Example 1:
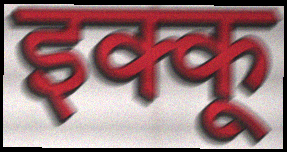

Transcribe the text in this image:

इक्कू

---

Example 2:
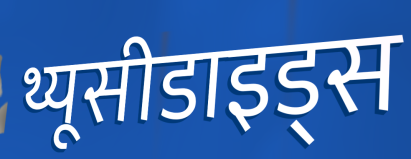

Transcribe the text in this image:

थ्यूसीडाइड्स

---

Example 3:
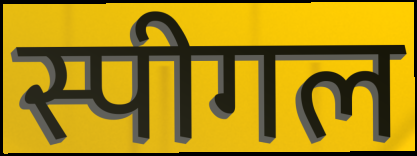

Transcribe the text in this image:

स्पीगल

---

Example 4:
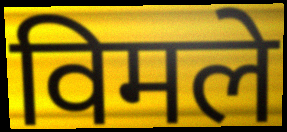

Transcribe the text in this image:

विमले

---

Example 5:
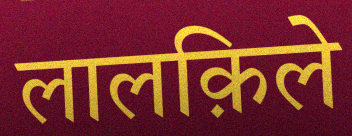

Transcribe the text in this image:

लालक़िले